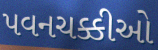
પવનચક્કીઓ